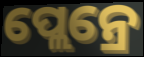
ପ୍ଲେନ୍ରେ